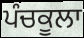
ਪੰਚਕੂਲਾ